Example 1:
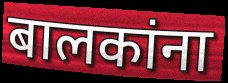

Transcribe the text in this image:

बालकांना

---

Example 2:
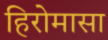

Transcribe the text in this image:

हिरोमासा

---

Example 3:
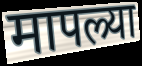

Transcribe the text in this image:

मापल्या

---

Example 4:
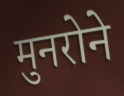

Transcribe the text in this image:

मुनरोने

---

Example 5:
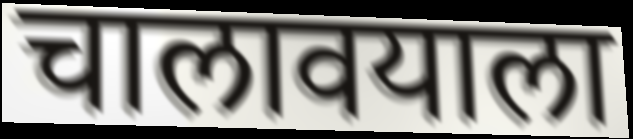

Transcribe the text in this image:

चालावयाला